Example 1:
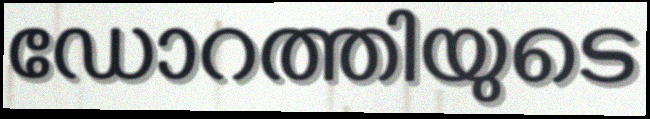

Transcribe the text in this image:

ഡോറത്തിയുടെ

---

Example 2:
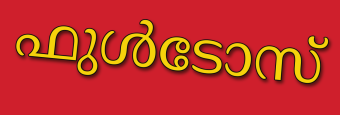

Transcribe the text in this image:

ഫുൾടോസ്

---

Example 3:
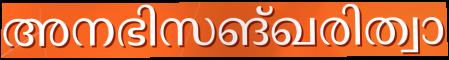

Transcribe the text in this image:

അനഭിസങ്ഖരിത്വാ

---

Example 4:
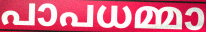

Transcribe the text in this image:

പാപധമ്മാ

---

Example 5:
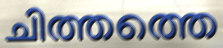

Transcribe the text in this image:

ചിത്തത്തെ